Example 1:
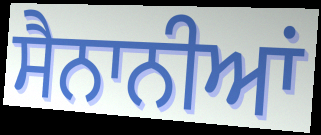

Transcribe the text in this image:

ਸੈਨਾਨੀਆਂ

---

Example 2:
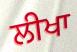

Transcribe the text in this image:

ਲੀਖਾ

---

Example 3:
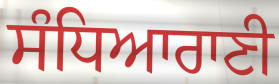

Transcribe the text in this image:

ਸੰਧਿਆਰਾਣੀ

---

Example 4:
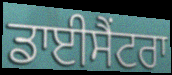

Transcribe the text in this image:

ਡਾਈਸੈਂਟਰਾ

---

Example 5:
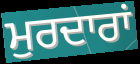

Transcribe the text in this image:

ਮੁਰਦਾਰਾਂ